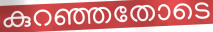
കുറഞ്ഞതോടെ